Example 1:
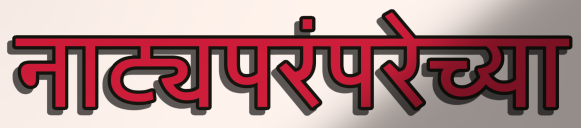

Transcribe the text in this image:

नाट्यपरंपरेच्या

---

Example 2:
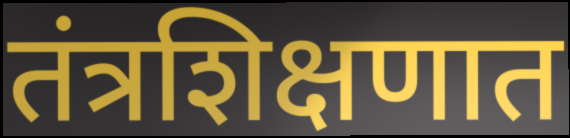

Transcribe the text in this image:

तंत्रशिक्षणात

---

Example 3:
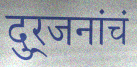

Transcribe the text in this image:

दुर्जनांचं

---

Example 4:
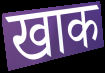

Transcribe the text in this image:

खाक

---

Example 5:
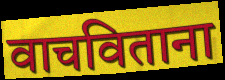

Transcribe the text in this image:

वाचविताना